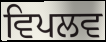
ਵਿਪਲਵ